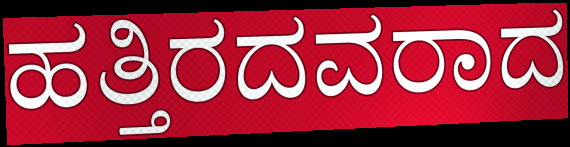
ಹತ್ತಿರದವರಾದ